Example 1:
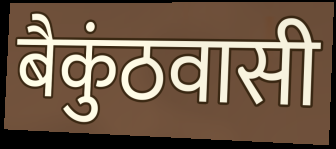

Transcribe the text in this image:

बैकुंठवासी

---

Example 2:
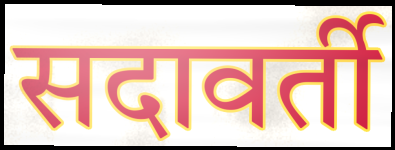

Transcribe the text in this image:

सदावर्ती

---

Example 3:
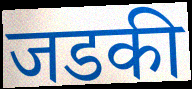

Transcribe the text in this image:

जडकी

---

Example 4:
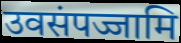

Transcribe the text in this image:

उवसंपज्जामि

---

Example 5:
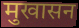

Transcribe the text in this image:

मुखासन